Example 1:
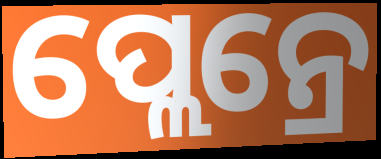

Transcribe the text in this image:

ପ୍ଲେନ୍ରେ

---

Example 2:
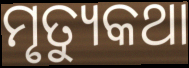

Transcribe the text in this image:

ମୃତ୍ୟୁକଥା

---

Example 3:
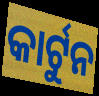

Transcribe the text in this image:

କାର୍ଟୁନ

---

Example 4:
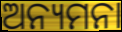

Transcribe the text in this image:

ଅନ୍ୟମନା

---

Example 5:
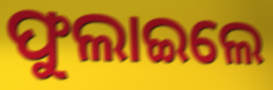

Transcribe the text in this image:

ଫୁଲାଇଲେ